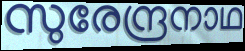
സുരേന്ദ്രനാഥ